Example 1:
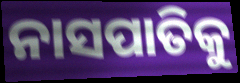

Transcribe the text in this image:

ନାସପାତିକୁ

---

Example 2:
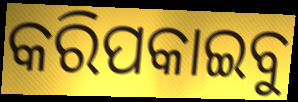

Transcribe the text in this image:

କରିପକାଇବୁ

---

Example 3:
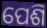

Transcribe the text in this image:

ପେଶି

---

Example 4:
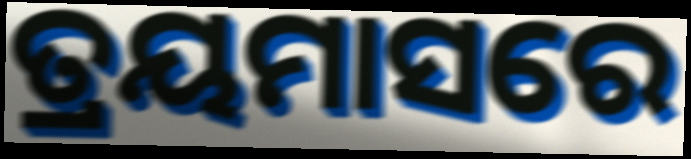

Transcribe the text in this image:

ତ୍ରୟମାସରେ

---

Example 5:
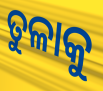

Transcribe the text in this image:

ତୁଳାକୁ